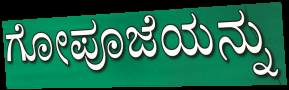
ಗೋಪೂಜೆಯನ್ನು